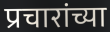
प्रचारांच्या